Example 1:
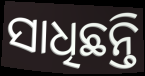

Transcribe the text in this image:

ସାଧିଛନ୍ତି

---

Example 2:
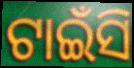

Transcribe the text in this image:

ଟାଇଁସି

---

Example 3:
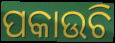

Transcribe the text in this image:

ପକାଉଚି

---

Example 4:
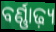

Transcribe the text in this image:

ବର୍ଣ୍ଣାଢ଼୍ୟ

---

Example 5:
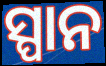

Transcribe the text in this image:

ସ୍ପାନ